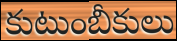
కుటుంబీకులు